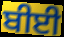
ਬੀਈ